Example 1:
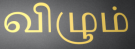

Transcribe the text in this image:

விழும்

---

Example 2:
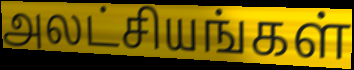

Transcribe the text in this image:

அலட்சியங்கள்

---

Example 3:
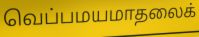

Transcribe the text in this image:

வெப்பமயமாதலைக்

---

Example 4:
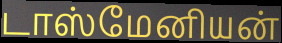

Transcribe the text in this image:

டாஸ்மேனியன்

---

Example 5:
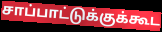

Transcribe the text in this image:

சாப்பாட்டுக்குக்கூட